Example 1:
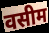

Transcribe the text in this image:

वसीम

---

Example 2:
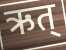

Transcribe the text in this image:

ऋत्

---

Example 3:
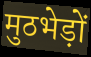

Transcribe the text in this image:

मुठभेड़ों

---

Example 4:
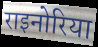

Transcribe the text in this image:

राइनोरिया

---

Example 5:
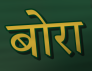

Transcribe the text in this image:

बोरा